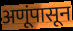
अणूंपासून